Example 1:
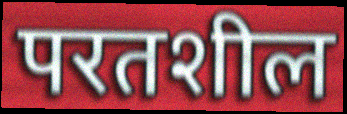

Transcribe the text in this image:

परतशील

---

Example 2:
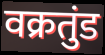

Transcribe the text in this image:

वक्रतुंड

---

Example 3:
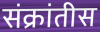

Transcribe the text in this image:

संक्रांतीस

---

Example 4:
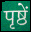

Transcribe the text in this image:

पृष्ठें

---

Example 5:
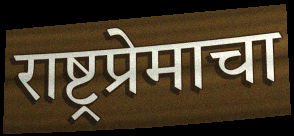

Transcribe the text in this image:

राष्ट्रप्रेमाचा